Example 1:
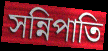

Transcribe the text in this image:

সন্নিপাতি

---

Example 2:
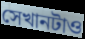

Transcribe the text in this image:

সেখানটাও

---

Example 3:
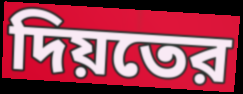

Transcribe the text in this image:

দিয়তের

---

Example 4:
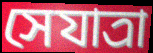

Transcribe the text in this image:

সেযাত্রা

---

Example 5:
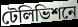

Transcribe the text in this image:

টেলিভিশনে